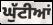
ਘੁੱਟੀਆਂ